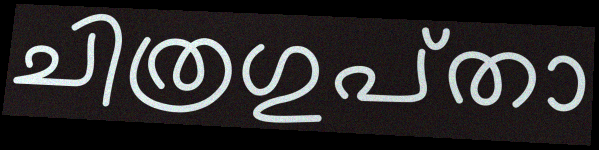
ചിത്രഗുപ്‌താ